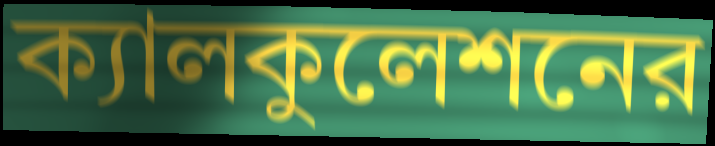
ক্যালকুলেশনের